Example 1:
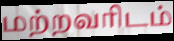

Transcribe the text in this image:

மற்றவரிடம்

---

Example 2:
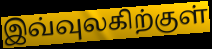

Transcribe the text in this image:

இவ்வுலகிற்குள்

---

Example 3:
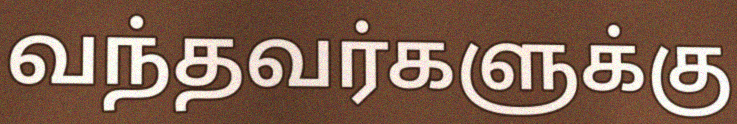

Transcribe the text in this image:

வந்தவர்களுக்கு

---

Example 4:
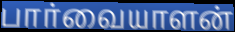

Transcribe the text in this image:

பார்வையாளன்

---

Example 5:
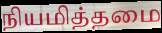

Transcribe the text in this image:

நியமித்தமை